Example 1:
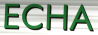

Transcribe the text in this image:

ECHA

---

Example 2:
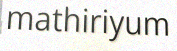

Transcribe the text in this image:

mathiriyum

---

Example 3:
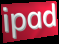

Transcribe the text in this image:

ipad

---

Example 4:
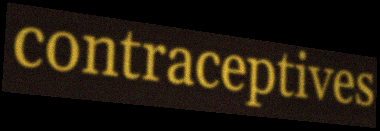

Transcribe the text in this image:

contraceptives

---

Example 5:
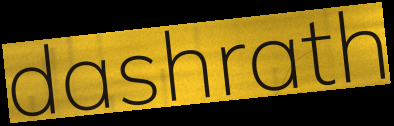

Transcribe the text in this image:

dashrath